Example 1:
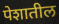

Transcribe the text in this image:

पेशातील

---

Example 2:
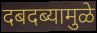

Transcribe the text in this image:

दबदब्यामुळे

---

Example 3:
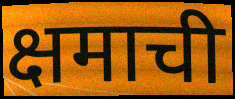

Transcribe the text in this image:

क्षमाची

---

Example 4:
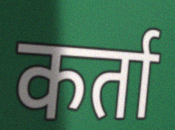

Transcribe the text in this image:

कर्ता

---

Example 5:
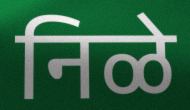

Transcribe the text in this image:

निळे